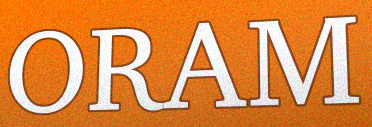
ORAM